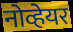
नोव्हेयर